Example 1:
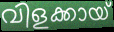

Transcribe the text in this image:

വിളക്കായ്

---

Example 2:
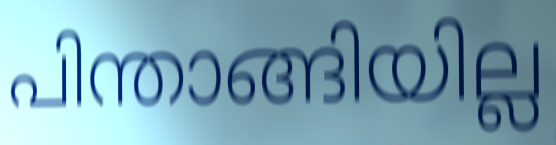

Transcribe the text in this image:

പിന്താങ്ങിയില്ല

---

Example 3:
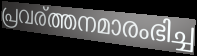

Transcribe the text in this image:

പ്രവര്ത്തനമാരംഭിച്ച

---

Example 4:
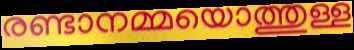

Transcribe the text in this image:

രണ്ടാനമ്മയൊത്തുള്ള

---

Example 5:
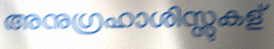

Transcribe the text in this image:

അനുഗ്രഹാശിസ്സുകള്